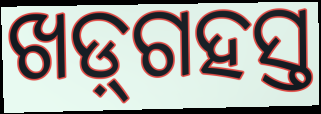
ଖଡ଼୍‌ଗହସ୍ତ